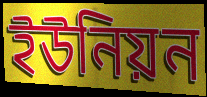
ইউনিয়ন